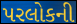
પરલોકની